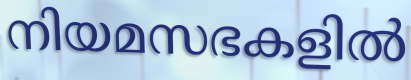
നിയമസഭകളിൽ